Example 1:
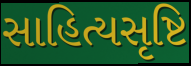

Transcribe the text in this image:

સાહિત્યસૃષ્ટિ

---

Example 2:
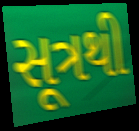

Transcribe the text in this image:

સૂત્રથી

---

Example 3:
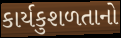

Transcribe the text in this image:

કાર્યકુશળતાનો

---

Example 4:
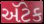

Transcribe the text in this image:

ઍટેક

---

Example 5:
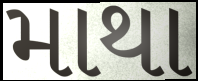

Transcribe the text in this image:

માથા